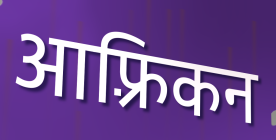
आफ़्रिकन